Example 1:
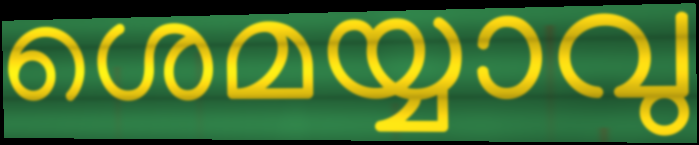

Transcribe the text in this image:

ശെമയ്യാവു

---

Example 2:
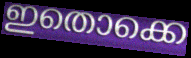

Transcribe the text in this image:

ഇതൊക്കെ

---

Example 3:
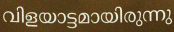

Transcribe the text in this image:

വിളയാട്ടമായിരുന്നു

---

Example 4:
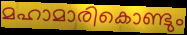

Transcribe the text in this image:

മഹാമാരികൊണ്ടും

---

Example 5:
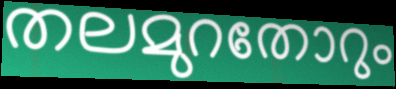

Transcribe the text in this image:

തലമുറതോറും